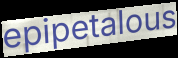
epipetalous